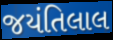
જયંતિલાલ